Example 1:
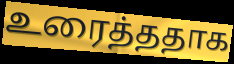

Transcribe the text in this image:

உரைத்ததாக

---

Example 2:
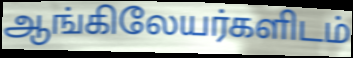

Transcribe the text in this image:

ஆங்கிலேயர்களிடம்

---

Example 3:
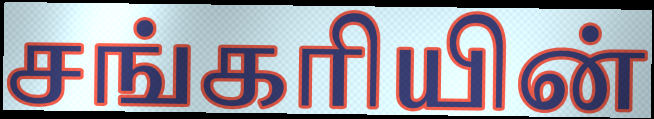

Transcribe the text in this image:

சங்கரியின்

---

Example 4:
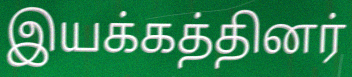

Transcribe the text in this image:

இயக்கத்தினர்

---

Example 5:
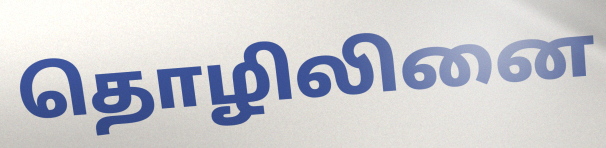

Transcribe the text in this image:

தொழிலினை